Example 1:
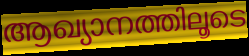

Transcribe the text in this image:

ആഖ്യാനത്തിലൂടെ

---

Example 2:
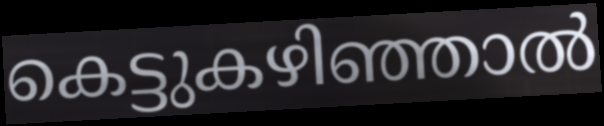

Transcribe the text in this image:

കെട്ടുകഴിഞ്ഞാൽ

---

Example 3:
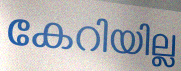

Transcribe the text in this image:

കേറിയില്ല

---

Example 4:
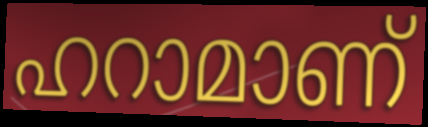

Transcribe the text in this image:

ഹറാമാണ്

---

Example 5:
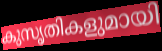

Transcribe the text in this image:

കുസൃതികളുമായി